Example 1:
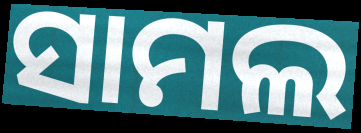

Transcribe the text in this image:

ସାମଲ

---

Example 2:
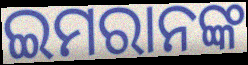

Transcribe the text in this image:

ଇମରାନଙ୍କ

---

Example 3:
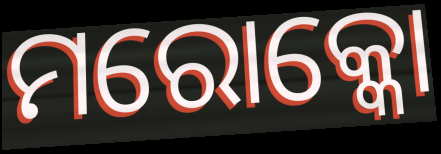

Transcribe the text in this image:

ମରୋକ୍କୋ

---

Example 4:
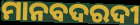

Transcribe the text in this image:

ମାନବଦରଦୀ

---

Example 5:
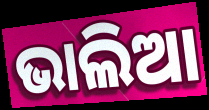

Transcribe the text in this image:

ଭାଲିଆ